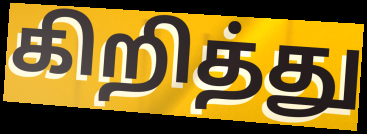
கிறித்து